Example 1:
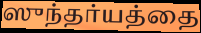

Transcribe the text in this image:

ஸுந்தர்யத்தை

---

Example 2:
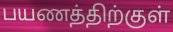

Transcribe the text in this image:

பயணத்திற்குள்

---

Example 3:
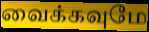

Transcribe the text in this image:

வைக்கவுமே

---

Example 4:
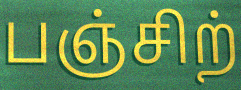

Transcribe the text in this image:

பஞ்சிற்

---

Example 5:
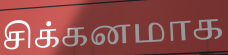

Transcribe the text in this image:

சிக்கனமாக